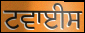
ਟਵਾਈਸ